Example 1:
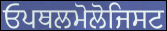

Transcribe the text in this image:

ਓਪਥਲਮੋਲੋਜਿਸਟ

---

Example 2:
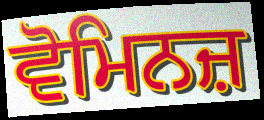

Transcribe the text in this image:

ਵੋਮਿਨਜ਼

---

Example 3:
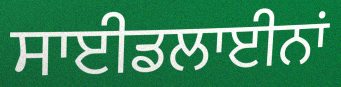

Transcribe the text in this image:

ਸਾਈਡਲਾਈਨਾਂ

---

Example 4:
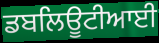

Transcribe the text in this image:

ਡਬਲਿਊਟੀਆਈ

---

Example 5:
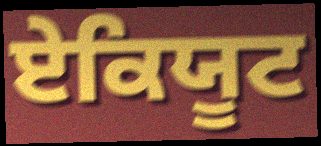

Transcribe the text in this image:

ਏਕਿਯੂਟ